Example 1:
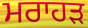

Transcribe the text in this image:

ਮਰਾਹੜ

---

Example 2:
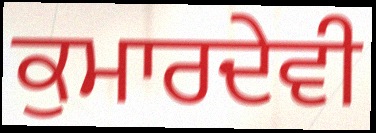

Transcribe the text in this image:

ਕੁਮਾਰਦੇਵੀ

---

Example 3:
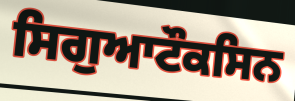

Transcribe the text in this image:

ਸਿਗੁਆਟੌਕਸਿਨ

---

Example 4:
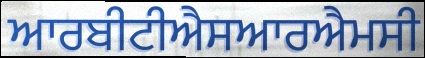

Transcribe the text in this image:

ਆਰਬੀਟੀਐਸਆਰਐਮਸੀ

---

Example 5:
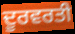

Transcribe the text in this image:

ਦੂਰਵਰਤੀ